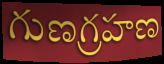
గుణగ్రహణ